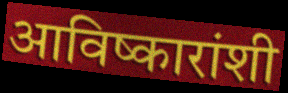
आविष्कारांशी